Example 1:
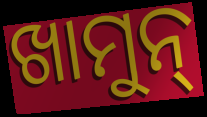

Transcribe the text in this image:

ଖାମୁନ୍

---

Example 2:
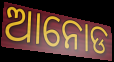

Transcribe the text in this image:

ଆନୋଡ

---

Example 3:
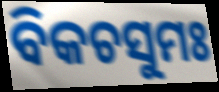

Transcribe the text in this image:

ବିକଚସୁମଃ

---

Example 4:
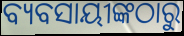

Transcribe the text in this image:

ବ୍ୟବସାୟୀଙ୍କଠାରୁ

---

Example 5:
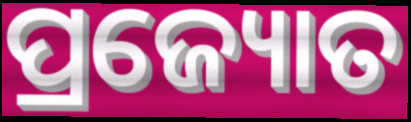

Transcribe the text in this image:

ପ୍ରଜ୍ୟୋତ